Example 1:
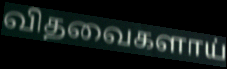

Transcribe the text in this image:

விதவைகளாய்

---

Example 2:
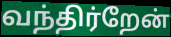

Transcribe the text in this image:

வந்திர்றேன்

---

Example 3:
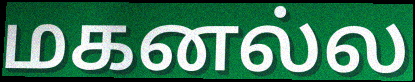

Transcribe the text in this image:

மகனல்ல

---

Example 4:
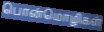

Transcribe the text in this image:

பொன்மொழிகள்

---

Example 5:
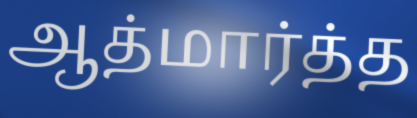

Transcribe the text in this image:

ஆத்மார்த்த